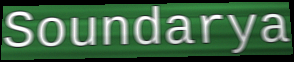
Soundarya